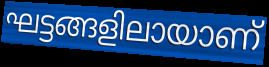
ഘട്ടങ്ങളിലായാണ്